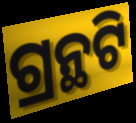
ଗ୍ରନ୍ଥଟି